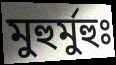
মুহুর্মুহুঃ